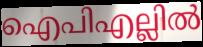
ഐപിഎല്ലിൽ